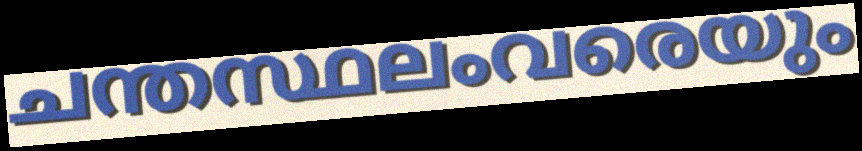
ചന്തസ്ഥലംവരെയും